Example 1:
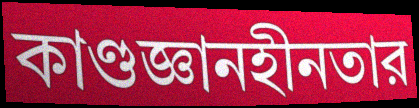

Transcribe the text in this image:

কাণ্ডজ্ঞানহীনতার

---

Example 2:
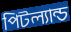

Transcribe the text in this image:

পিটল্যান্ড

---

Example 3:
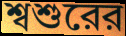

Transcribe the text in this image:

শ্বশুরের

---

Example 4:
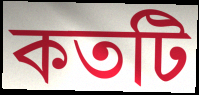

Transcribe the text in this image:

কতটি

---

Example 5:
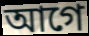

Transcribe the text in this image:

আগে